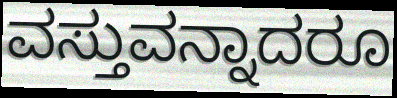
ವಸ್ತುವನ್ನಾದರೂ